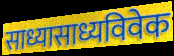
साध्यासाध्यविवेक